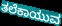
ತಲೆಕಾಯುವ